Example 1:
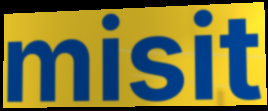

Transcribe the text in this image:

misit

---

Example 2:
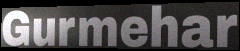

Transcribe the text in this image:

Gurmehar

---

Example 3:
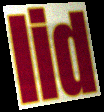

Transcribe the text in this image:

lid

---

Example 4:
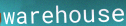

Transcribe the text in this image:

warehouse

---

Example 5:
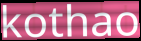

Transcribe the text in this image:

kothao